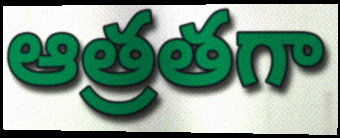
ఆత్రతగా